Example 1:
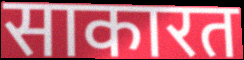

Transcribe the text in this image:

साकारत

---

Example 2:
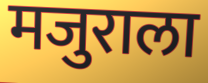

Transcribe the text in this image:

मजुराला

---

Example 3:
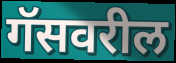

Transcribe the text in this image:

गॅसवरील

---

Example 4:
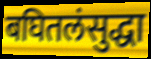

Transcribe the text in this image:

बघितलंसुद्धा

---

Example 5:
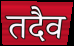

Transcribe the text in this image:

तदैव